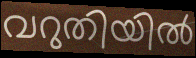
വറുതിയിൽ